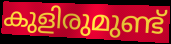
കുളിരുമുണ്ട്